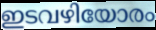
ഇടവഴിയോരം